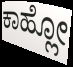
ಕಾಹ್ಲೋ